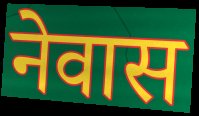
नेवास